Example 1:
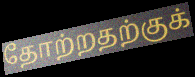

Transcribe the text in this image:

தோற்றதற்குக்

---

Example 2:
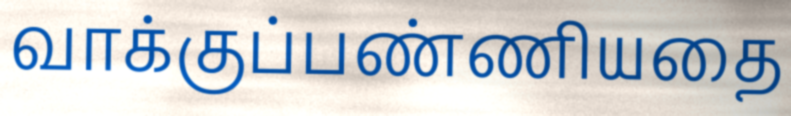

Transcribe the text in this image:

வாக்குப்பண்ணியதை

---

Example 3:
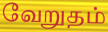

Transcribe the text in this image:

வேறுதம்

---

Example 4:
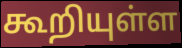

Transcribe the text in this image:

கூறியுள்ள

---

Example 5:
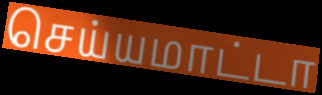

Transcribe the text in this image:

செய்யமாட்டா